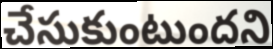
చేసుకుంటుందని